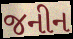
જનીન